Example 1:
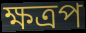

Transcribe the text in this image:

ক্ষত্রপ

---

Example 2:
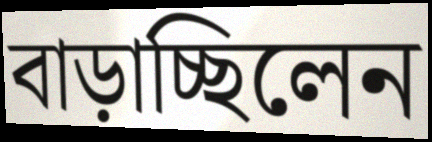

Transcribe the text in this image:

বাড়াচ্ছিলেন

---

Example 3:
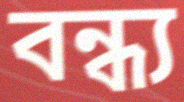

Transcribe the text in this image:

বন্ধ্য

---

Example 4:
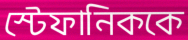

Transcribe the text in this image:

স্টেফানিককে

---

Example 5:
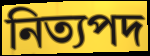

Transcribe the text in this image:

নিত্যপদ